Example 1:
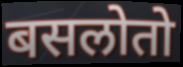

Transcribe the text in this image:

बसलोतो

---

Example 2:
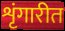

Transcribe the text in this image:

शृंगारीत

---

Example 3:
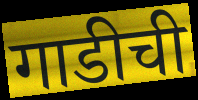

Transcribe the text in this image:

गाडीची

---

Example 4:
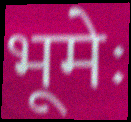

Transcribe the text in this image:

भूमेः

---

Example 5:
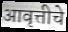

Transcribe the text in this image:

आवृत्तीचे